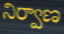
నిర్వాణ